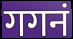
गगनं